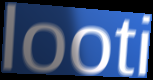
looti